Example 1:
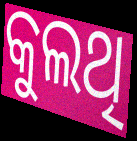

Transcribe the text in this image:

କୁଲଥି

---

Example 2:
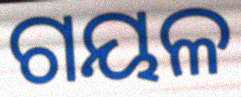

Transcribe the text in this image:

ଗୟଳ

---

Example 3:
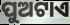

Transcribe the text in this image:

ପୁଅଟାଏ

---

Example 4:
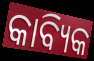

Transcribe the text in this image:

କାବ୍ୟିକ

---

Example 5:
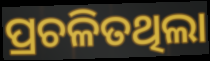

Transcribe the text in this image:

ପ୍ରଚଳିତଥିଲା